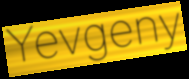
Yevgeny